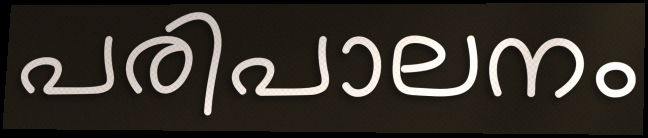
പരിപാലനം